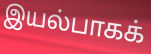
இயல்பாகக்